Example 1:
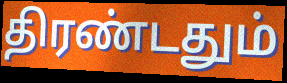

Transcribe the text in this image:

திரண்டதும்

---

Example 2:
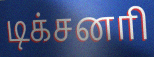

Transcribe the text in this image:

டிக்சனரி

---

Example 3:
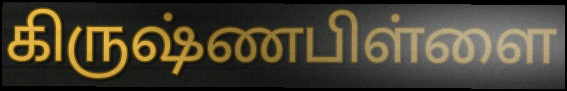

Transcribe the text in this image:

கிருஷ்ணபிள்ளை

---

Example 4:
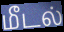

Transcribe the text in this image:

மீடல்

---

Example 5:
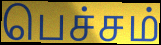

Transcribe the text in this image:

பெச்சம்